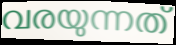
വരയുന്നത്